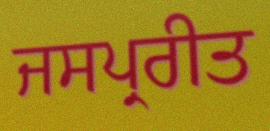
ਜਸਪ੍ਰਰੀਤ